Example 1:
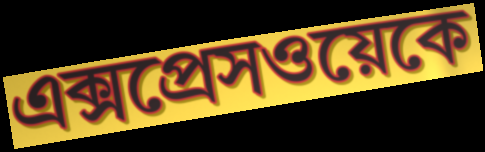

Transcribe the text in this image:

এক্সপ্রেসওয়েকে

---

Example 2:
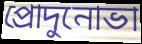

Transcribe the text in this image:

প্রোদুনোভা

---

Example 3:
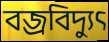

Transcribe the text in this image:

বজ্রবিদ্যুৎ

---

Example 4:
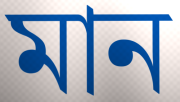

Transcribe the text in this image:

মান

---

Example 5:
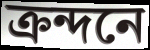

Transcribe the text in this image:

ক্রন্দনে